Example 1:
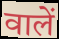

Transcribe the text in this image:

वालें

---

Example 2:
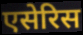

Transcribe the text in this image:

एसेरिस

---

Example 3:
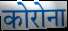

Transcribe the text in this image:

कोरोना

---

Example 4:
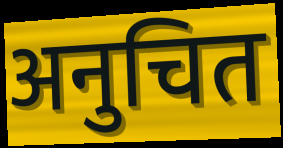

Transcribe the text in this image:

अनुचित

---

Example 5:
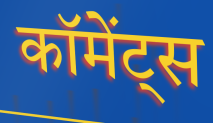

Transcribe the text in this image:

कॉमेंट्स